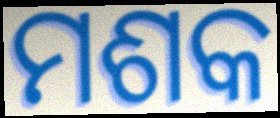
ମଶକ